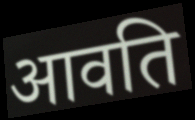
आवति